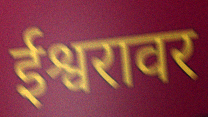
ईश्वरावर